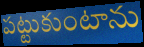
పట్టుకుంటాను